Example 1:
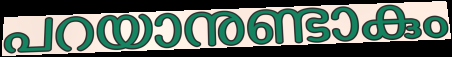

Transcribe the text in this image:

പറയാനുണ്ടാകും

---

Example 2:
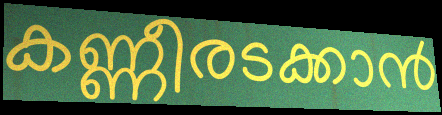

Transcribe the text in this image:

കണ്ണീരടക്കാൻ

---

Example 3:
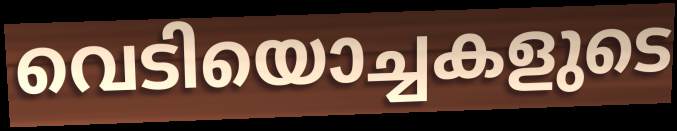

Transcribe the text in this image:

വെടിയൊച്ചകളുടെ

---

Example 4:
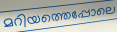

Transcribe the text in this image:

മറിയത്തെപ്പോലെ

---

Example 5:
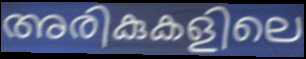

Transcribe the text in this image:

അരികുകളിലെ